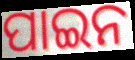
ପାଇନ